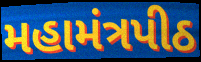
મહામંત્રપીઠ